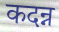
कदन्न